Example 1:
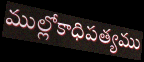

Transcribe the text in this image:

ముల్లోకాధిపత్యము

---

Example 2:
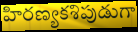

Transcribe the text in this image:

హిరణ్యకశిపుడుగా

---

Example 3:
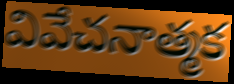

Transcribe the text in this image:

వివేచనాత్మక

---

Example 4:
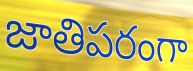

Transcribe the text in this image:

జాతిపరంగా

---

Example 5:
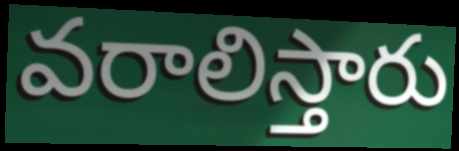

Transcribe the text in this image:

వరాలిస్తారు